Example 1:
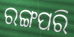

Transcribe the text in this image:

ରଙ୍ଗପରି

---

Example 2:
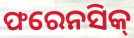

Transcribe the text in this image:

ଫରେନସିକ୍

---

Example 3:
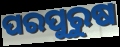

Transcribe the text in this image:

ପରପୁରୁଷ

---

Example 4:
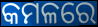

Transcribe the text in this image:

କମଳରେ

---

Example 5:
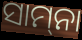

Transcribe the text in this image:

ସାମ୍‌ନା